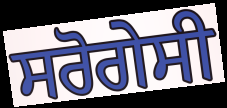
ਸਰੋਗੇਸੀ